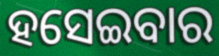
ହସେଇବାର